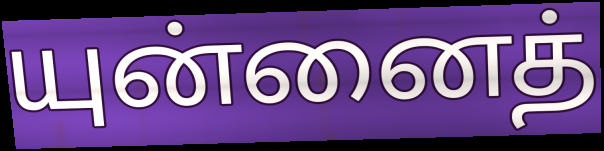
யுன்னைத்